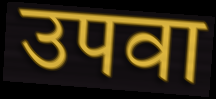
उपवा